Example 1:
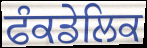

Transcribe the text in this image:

ਫੰਕਡੇਲਿਕ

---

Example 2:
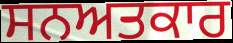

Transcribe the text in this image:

ਸਨਅਤਕਾਰ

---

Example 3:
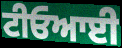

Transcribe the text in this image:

ਟੀਓਆਈ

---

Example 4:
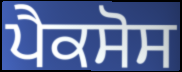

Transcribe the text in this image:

ਪੈਕਸੋਸ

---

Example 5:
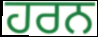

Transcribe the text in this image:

ਹਰਨ